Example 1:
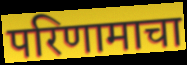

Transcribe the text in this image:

परिणामाचा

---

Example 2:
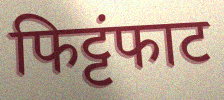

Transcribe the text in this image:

फिट्टंफाट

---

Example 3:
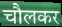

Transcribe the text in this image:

चौलकर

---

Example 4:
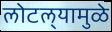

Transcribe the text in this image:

लोटल्यामुळे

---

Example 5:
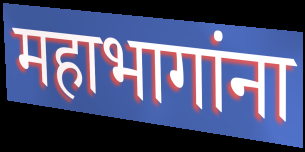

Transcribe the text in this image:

महाभागांना